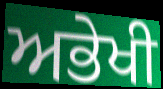
ਅਭੇਖੀ